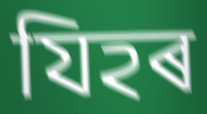
যিহৰ